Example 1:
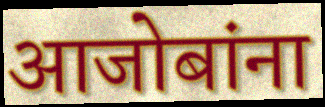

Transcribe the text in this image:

आजोबांना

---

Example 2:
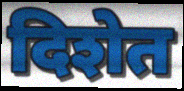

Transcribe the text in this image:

दिशेत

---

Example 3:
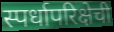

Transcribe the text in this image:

स्पर्धापरिक्षेची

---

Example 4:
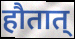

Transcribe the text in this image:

हौतात्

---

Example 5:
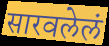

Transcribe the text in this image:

सारवलेलं